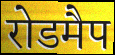
रोडमैप